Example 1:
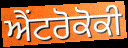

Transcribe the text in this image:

ਐਂਟਰੋਕੋਕੀ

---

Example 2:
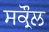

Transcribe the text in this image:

ਸਕ੍ਰੌਲ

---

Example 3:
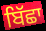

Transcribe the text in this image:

ਬਿੱਛਾ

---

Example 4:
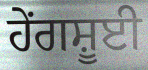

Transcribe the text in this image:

ਹੇਂਗਸ਼ੂਈ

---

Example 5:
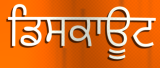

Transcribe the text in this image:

ਡਿਸਕਾਊਟ